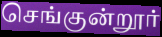
செங்குன்றூர்